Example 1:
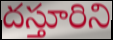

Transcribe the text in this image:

దస్తూరిని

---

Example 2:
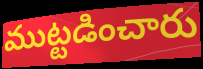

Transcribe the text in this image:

ముట్టడించారు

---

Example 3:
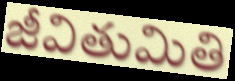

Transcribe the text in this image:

జీవితుమితి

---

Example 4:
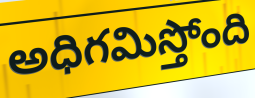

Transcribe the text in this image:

అధిగమిస్తోంది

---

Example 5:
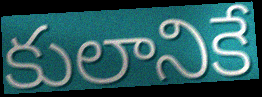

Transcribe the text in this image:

కులానికే